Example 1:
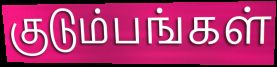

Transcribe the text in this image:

குடும்பங்கள்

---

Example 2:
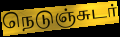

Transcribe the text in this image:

நெடுஞ்சுடர்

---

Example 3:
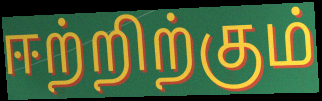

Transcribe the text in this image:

ஈற்றிற்கும்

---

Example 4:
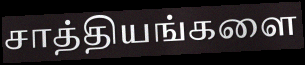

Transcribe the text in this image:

சாத்தியங்களை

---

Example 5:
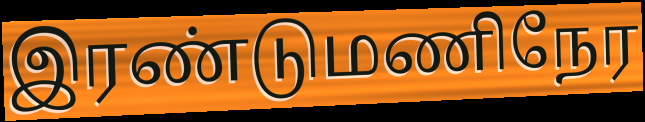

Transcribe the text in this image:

இரண்டுமணிநேர